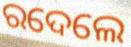
ରଦେଲେ